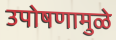
उपोषणामुळे